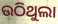
ଉଠିଥୁଲା